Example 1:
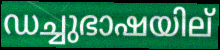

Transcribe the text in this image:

ഡച്ചുഭാഷയില്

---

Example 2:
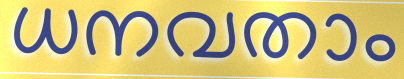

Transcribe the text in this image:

ധനവതാം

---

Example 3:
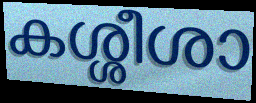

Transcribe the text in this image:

കശ്ശീശാ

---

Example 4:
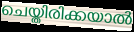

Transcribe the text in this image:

ചെയ്തിരിക്കയാൽ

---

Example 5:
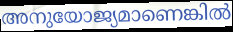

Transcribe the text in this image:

അനുയോജ്യമാണെങ്കിൽ